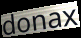
donax